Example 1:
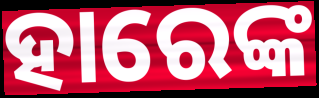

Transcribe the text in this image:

ହାରେଙ୍କ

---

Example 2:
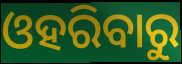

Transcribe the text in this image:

ଓହରିବାରୁ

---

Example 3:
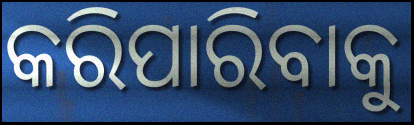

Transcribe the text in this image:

କରିପାରିବାକୁ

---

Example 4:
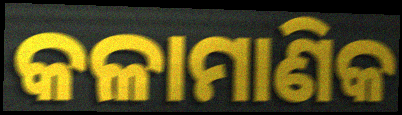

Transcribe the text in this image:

କଳାମାଣିକ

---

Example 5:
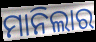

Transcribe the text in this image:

ମାନିଲାର